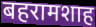
बहरामशाह